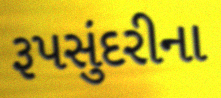
રૂપસુંદરીના